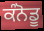
ਕੰਨੋਡੂ